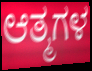
ಆತ್ಮಗಳ